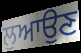
ਲੁਆਉਣ